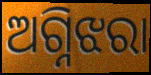
ଅଗ୍ନିଝରା